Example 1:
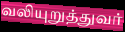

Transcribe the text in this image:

வலியுறுத்துவர்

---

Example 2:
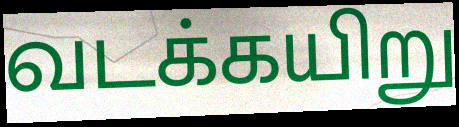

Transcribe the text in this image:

வடக்கயிறு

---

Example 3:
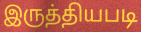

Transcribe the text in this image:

இருத்தியபடி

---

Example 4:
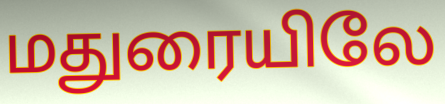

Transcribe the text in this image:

மதுரையிலே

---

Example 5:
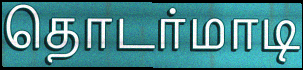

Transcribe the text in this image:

தொடர்மாடி